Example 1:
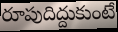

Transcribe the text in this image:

రూపుదిద్దుకుంటే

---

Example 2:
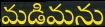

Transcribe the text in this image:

మడిమను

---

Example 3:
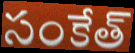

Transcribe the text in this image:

సంకేత్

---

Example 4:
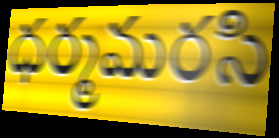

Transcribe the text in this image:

ధర్మమరసి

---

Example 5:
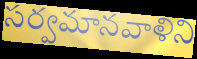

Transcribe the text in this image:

సర్వమానవాళిని